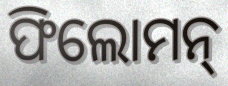
ଫିଲୋମନ୍